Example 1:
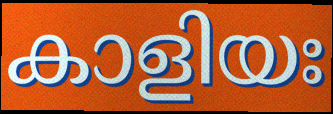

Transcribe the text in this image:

കാളിയഃ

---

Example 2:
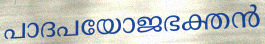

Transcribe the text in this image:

പാദപയോജഭക്തൻ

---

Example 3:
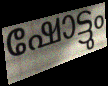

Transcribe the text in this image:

ഷോട്ടും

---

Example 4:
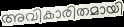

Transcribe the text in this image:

അവികാരിതമായി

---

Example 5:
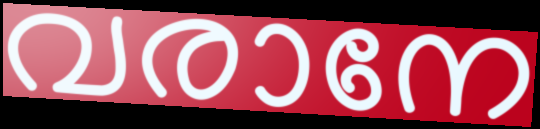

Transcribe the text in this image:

വരാനേ